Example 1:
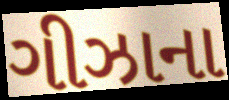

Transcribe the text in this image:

ગીઝાના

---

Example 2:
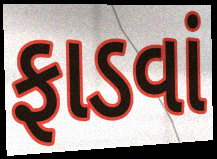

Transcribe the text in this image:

ફાડવાં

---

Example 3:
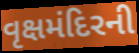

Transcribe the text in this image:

વૃક્ષમંદિરની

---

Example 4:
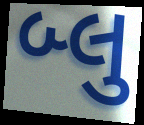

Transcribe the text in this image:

બ્લુ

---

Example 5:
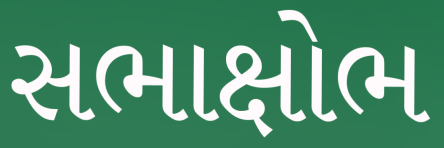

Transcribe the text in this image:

સભાક્ષોભ